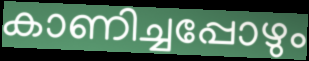
കാണിച്ചപ്പോഴും